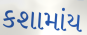
કશામાંય